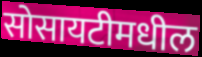
सोसायटीमधील